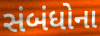
સંબંધોના